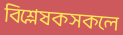
বিশ্লেষকসকলে